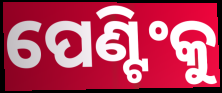
ପେଣ୍ଟିଂକୁ